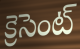
క్రెసెంట్